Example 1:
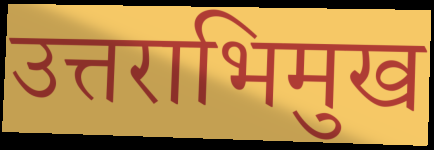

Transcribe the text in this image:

उत्तराभिमुख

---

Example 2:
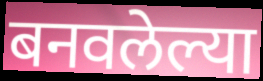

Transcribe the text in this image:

बनवलेल्या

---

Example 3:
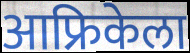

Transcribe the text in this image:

आफ्रिकेला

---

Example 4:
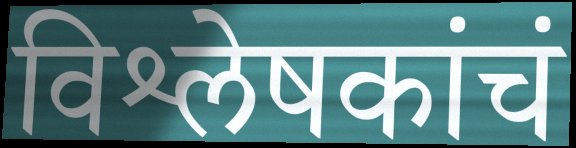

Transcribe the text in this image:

विश्लेषकांचं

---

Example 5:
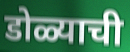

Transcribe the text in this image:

डोळ्याची